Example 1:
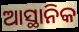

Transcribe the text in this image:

ଆସ୍ଥାନିକ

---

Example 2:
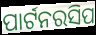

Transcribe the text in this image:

ପାର୍ଟନରସିପ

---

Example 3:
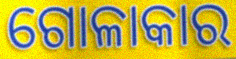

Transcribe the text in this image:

ଗୋଳାକାର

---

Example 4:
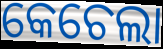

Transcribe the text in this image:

କେଚେଲା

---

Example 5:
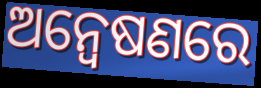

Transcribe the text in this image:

ଅନ୍ବେଷଣରେ